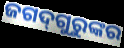
ଜଗଦ୍‌ଗୁରୁଙ୍କର